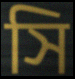
সি